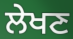
ਲੇਖਣ